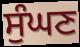
ਸੁੰਘਣ